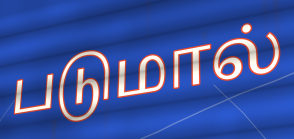
படுமால்